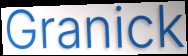
Granick